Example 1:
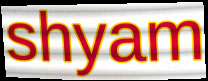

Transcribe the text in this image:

shyam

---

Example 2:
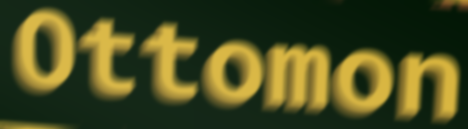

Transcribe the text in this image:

Ottomon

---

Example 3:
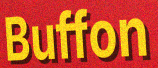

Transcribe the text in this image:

Buffon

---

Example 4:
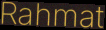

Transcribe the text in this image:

Rahmat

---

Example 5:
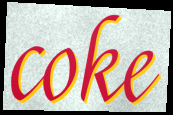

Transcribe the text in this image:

coke